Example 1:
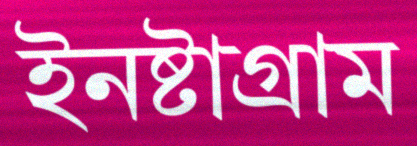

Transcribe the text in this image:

ইনষ্টাগ্ৰাম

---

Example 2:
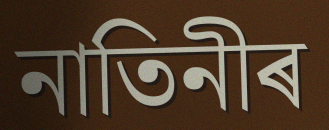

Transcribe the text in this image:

নাতিনীৰ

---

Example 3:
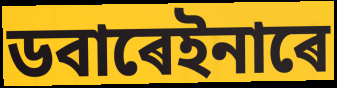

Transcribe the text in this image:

ডবাৰেইনাৰে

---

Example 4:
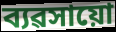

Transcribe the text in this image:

ব্যৱসায়ো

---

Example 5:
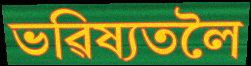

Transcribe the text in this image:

ভৱিষ্যতলৈ